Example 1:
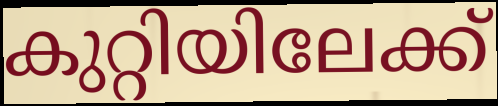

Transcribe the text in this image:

കുറ്റിയിലേക്ക്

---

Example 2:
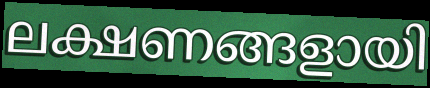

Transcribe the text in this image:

ലക്ഷണങ്ങളായി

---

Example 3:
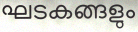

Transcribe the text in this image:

ഘടകങ്ങളും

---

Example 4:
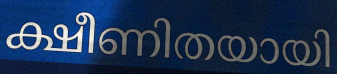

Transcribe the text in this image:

ക്ഷീണിതയായി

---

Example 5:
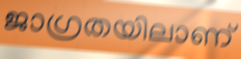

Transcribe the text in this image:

ജാഗ്രതയിലാണ്